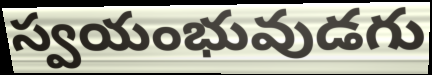
స్వయంభువుడగు